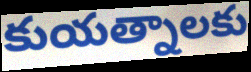
కుయత్నాలకు